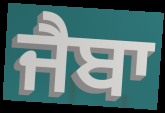
ਜੈਬਾ